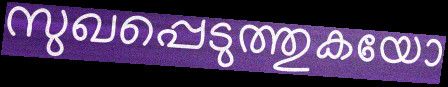
സുഖപ്പെടുത്തുകയോ